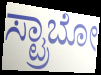
ಸ್ಟ್ರಾಬೋ